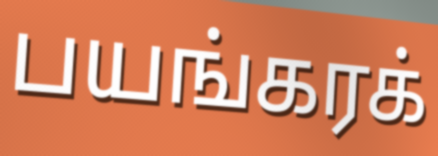
பயங்கரக்